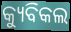
କ୍ୟୁବିକଲ